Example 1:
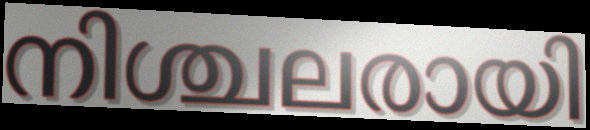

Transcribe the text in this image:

നിശ്ചലരായി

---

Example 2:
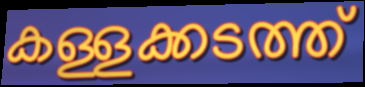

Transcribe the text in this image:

കള്ളക്കടത്ത്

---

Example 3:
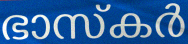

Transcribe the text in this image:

ഭാസ്‌കർ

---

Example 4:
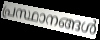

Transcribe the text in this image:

പ്രസ്ഥാനങ്ങൾ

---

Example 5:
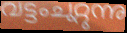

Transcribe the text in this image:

വട്ടംചുറ്റുന്നു